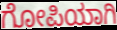
ಗೋಪಿಯಾಗಿ